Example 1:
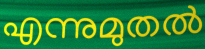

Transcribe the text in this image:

എന്നുമുതൽ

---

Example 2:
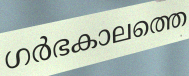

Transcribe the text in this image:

ഗർഭകാലത്തെ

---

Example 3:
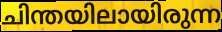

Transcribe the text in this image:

ചിന്തയിലായിരുന്ന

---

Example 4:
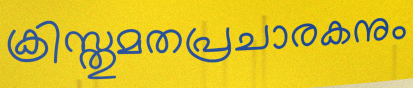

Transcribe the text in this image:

ക്രിസ്തുമതപ്രചാരകനും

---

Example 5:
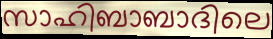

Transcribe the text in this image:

സാഹിബാബാദിലെ